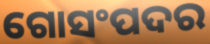
ଗୋସଂପଦର